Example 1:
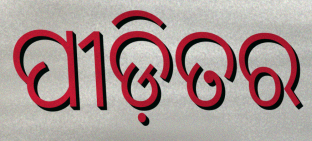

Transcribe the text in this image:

ପୀଡ଼ିତର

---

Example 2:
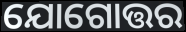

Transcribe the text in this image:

ଯୋଗୋତ୍ତର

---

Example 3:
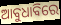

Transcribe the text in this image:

ଆବୁଧାବିରେ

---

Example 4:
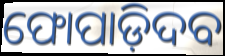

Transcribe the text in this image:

ଫୋପାଡ଼ିଦବ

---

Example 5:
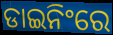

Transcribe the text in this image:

ଡାଇନିଂରେ